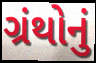
ગ્રંથોનું